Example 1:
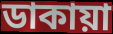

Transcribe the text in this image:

ডাকায়া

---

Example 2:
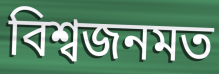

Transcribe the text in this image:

বিশ্বজনমত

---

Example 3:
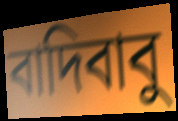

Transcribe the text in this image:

বাদিবাবু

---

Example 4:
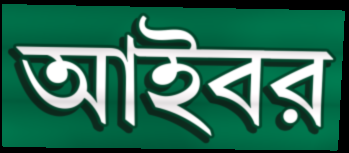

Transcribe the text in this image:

আইবর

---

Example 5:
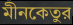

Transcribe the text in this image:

মীনকেতুর